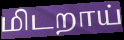
மிடறாய்